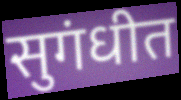
सुगंधीत